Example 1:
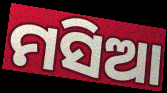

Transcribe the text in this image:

ମସିଆ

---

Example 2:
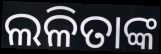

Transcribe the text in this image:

ଲଳିତାଙ୍କ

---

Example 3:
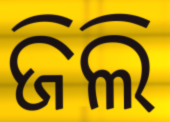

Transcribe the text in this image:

ଜିଲି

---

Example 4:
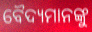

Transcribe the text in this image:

ବୈଦ୍ୟମାନଙ୍କୁ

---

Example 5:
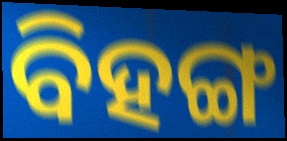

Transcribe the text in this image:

ବିହଙ୍ଗ